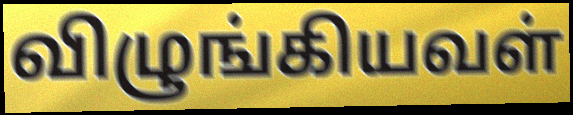
விழுங்கியவள்